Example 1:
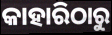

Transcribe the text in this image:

କାହାରିଠାରୁ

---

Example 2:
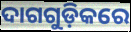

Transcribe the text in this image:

ଦାଗଗୁଡ଼ିକରେ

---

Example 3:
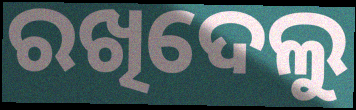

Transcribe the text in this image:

ରଖିଦେଲୁ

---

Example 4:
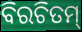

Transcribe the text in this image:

ବିରଚିତମ୍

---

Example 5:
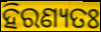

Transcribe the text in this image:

ହିରଣ୍ୟତଃ